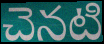
చెనటి